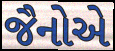
જૈનોએ